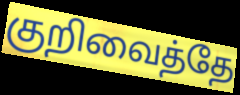
குறிவைத்தே